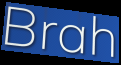
Brah